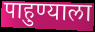
पाहुण्याला